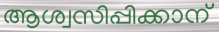
ആശ്വസിപ്പിക്കാന്